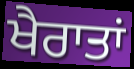
ਖੈਰਾਤਾਂ